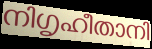
നിഗൃഹീതാനി